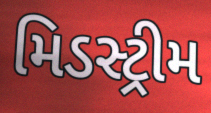
મિડસ્ટ્રીમ